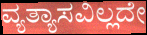
ವ್ಯತ್ಯಾಸವಿಲ್ಲದೇ